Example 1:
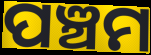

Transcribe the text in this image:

ପଞ୍ଚମ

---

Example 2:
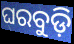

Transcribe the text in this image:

ଘରବୁଡ଼ି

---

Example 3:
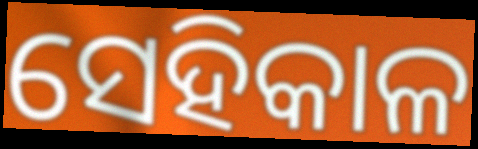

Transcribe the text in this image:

ସେହିକାଳ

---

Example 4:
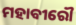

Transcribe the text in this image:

ମହାବୀରୌ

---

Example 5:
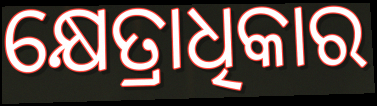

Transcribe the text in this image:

କ୍ଷେତ୍ରାଧିକାର